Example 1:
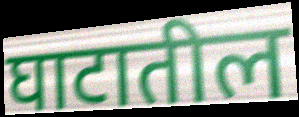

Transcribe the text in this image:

घाटातील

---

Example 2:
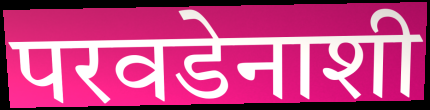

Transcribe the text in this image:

परवडेनाशी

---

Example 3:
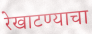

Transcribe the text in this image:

रेखाटण्याचा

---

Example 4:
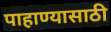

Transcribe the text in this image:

पाहाण्यासाठी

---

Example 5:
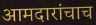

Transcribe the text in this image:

आमदारांचाच